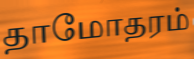
தாமோதரம்